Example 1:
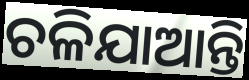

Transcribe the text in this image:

ଚଳିଯାଆନ୍ତି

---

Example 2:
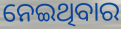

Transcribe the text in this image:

ନେଇଥିବାର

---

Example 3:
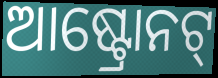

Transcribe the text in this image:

ଆଷ୍ଟ୍ରୋନଟ୍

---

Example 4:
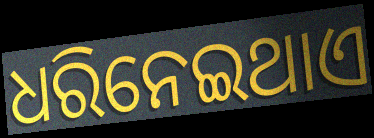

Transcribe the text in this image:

ଧରିନେଇଥାଏ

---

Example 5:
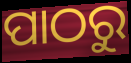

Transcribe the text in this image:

ପାଠରୁ